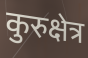
कुरुक्षेत्र